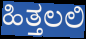
ಹಿತ್ತಲಲಿ